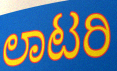
ಲಾಟರಿ